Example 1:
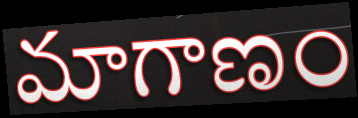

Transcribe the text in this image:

మాగాణం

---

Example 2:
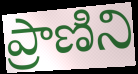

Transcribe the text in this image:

ప్రాణిని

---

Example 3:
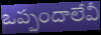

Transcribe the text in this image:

ఒప్పందాలేవీ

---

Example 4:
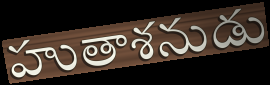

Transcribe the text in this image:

హుతాశనుడు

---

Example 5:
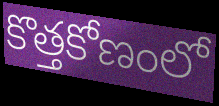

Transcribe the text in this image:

కొత్తకోణంలో